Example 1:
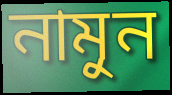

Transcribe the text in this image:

নামুন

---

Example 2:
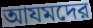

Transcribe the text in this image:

আযমদের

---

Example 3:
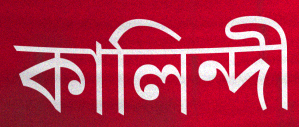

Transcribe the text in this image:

কালিন্দী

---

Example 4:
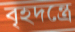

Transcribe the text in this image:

বৃহদন্ত্রে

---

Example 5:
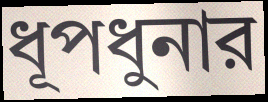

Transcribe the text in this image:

ধূপধুনার